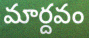
మార్దవం